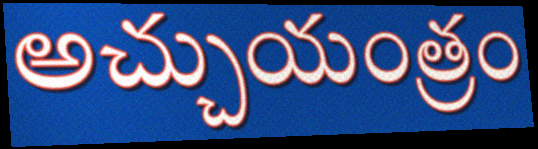
అచ్చుయంత్రం